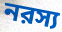
নরস্য